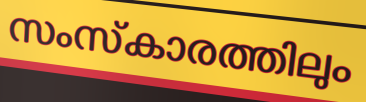
സംസ്‌കാരത്തിലും